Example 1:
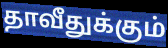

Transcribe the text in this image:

தாவீதுக்கும்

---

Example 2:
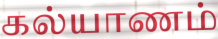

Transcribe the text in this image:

கல்யாணம்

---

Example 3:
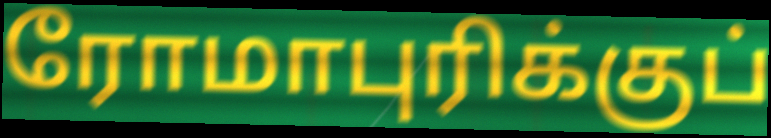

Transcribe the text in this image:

ரோமாபுரிக்குப்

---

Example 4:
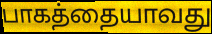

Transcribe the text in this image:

பாகத்தையாவது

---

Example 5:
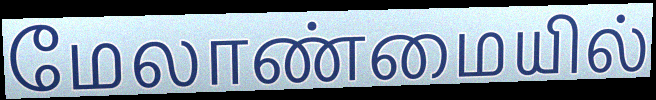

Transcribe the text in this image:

மேலாண்மையில்